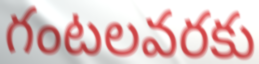
గంటలవరకు